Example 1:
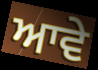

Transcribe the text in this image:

ਆਵੇ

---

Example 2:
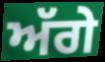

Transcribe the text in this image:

ਅੱਗੇ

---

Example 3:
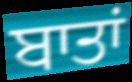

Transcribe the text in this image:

ਬਾਤਾਂ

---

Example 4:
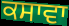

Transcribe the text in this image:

ਕਸਾਵਾ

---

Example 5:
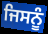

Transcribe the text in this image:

ਜਿਸਨੂੰ